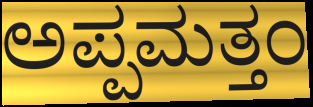
ಅಪ್ಪಮತ್ತಂ